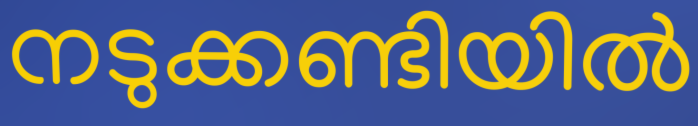
നടുക്കണ്ടിയിൽ